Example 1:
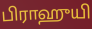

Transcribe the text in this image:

பிராஹுயி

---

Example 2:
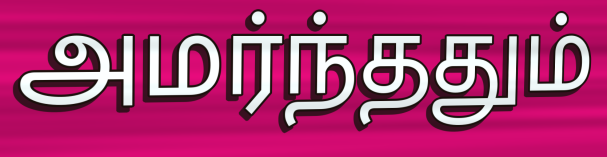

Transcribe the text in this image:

அமர்ந்ததும்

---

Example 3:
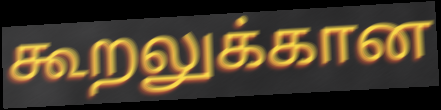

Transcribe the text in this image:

கூறலுக்கான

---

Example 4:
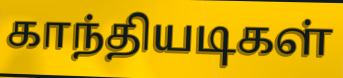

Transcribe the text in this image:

காந்தியடிகள்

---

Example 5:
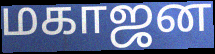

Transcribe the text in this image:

மகாஜன